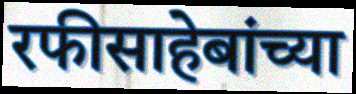
रफीसाहेबांच्या